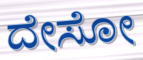
ದೇಸೋ